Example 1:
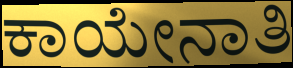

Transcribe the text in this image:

ಕಾಯೇನಾತಿ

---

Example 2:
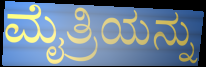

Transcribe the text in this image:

ಮೈತ್ರಿಯನ್ನು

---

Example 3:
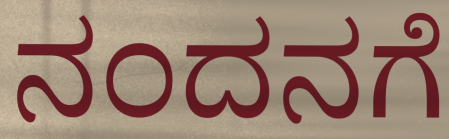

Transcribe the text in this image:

ನಂದನಗೆ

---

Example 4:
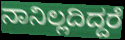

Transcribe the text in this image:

ನಾನಿಲ್ಲದಿದ್ದರೆ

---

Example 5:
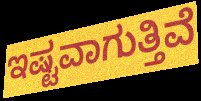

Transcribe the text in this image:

ಇಷ್ಟವಾಗುತ್ತಿವೆ